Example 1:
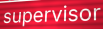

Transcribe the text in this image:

supervisor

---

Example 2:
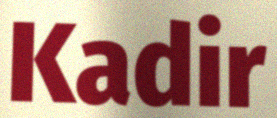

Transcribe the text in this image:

Kadir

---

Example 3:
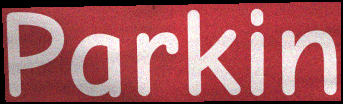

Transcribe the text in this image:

Parkin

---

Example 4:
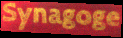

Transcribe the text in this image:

Synagoge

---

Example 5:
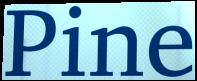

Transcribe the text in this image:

Pine